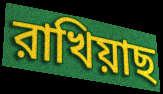
রাখিয়াছ